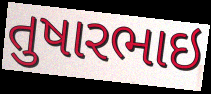
તુષારભાઇ